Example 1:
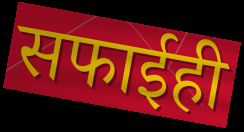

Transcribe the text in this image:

सफाईही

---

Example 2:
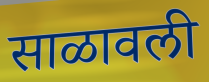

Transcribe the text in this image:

साळावली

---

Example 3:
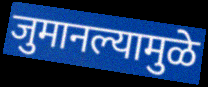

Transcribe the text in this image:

जुमानल्यामुळे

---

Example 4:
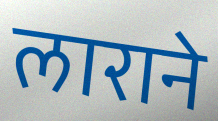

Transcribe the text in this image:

लाराने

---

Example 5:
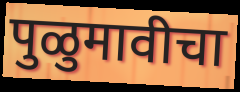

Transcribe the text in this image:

पुळुमावीचा